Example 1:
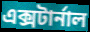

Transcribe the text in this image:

এক্সটার্নাল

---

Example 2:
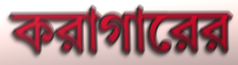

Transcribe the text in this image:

করাগারের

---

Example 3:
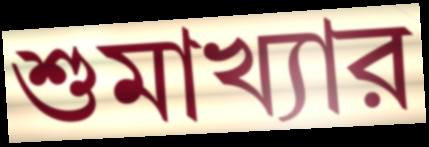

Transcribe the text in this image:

শুমাখ্যার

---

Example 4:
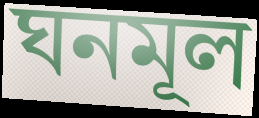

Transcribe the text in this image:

ঘনমূল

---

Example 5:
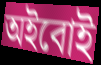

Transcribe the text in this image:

অইবোই